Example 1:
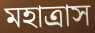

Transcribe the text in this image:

মহাত্রাস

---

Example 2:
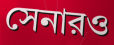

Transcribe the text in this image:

সেনারও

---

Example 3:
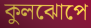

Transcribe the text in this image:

কুলঝোপে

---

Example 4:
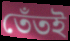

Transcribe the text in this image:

তেঁতই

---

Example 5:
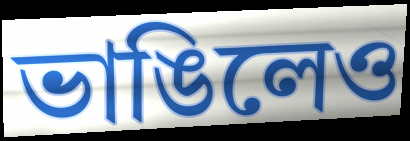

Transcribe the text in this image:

ভাঙিলেও